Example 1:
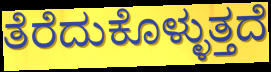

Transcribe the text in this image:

ತೆರೆದುಕೊಳ್ಳುತ್ತದೆ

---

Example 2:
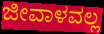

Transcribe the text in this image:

ಜೀವಾಳವಲ್ಲ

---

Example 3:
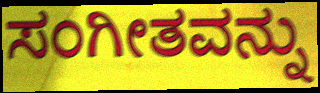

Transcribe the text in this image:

ಸಂಗೀತವನ್ನು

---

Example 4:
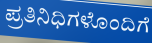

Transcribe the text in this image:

ಪ್ರತಿನಿಧಿಗಳೊಂದಿಗೆ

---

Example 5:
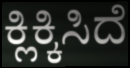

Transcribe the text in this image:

ಕ್ಲಿಕ್ಕಿಸಿದೆ